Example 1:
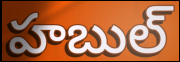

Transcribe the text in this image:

హబుల్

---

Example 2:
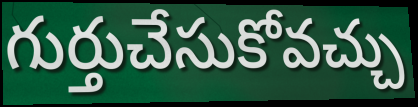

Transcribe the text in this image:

గుర్తుచేసుకోవచ్చు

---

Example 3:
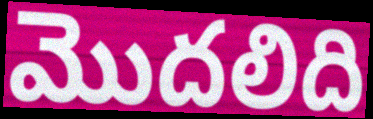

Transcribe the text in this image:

మొదలిది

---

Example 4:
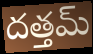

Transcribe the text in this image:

దత్తమ్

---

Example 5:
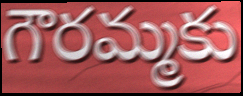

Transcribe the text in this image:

గౌరమ్మకు